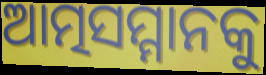
ଆତ୍ମସମ୍ମାନକୁ